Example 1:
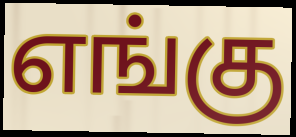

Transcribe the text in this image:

எங்கு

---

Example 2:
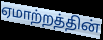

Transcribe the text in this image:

ஏமாற்றத்தின்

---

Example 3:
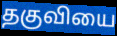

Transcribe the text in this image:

தகுவியை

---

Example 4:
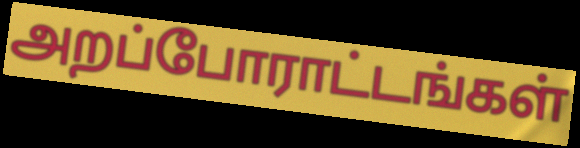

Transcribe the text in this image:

அறப்போராட்டங்கள்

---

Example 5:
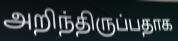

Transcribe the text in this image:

அறிந்திருப்பதாக